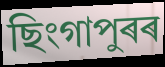
ছিংগাপুৰৰ